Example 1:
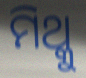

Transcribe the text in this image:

ମିଥ୍କୁ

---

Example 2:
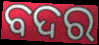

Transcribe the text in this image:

ବଦର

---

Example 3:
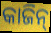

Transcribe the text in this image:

କାଜିନ୍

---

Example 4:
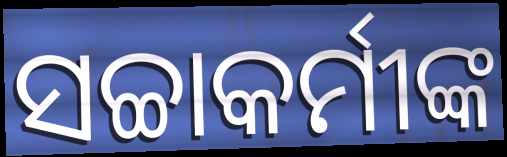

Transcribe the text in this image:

ସଚ୍ଚାକର୍ମୀଙ୍କ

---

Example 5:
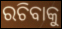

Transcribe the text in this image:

ରଚିବାକୁ